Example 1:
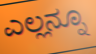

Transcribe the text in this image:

ಎಲ್ಲನ್ನೂ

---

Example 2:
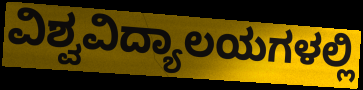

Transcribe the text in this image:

ವಿಶ್ವವಿದ್ಯಾಲಯಗಳಲ್ಲಿ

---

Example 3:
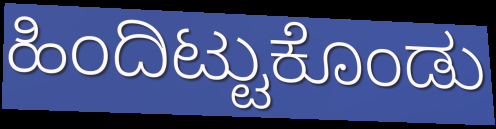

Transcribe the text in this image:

ಹಿಂದಿಟ್ಟುಕೊಂಡು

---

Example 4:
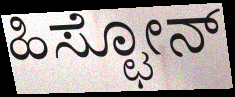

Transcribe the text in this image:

ಹಿಸ್ಟೋನ್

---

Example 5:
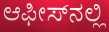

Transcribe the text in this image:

ಆಫೀಸ್‌ನಲ್ಲಿ